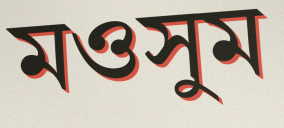
মওসুম